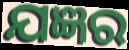
ଯଜ୍ଞର